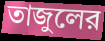
তাজুলের